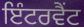
ਇੰਟਰਵੈਂਟ